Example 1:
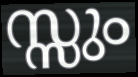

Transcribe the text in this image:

സ്സും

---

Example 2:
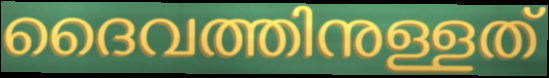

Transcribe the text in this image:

ദൈവത്തിനുള്ളത്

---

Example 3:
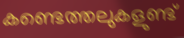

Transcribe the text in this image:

കണ്ടെത്തലുകളുണ്ട്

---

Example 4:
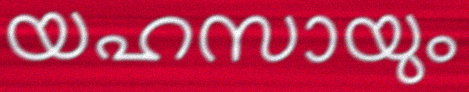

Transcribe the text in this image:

യഹസായും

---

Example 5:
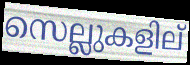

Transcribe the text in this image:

സെല്ലുകളില്